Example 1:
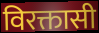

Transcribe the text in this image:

विरक्तासी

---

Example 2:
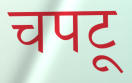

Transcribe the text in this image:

चपटू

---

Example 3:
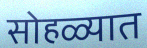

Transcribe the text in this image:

सोहळ्यात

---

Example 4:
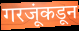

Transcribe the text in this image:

गरजूंकडून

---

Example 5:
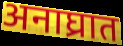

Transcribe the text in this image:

अनाघ्रात